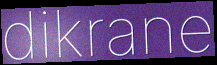
dikrane